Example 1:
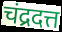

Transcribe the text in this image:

चंद्रदत्त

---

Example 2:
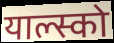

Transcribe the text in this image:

याल्स्को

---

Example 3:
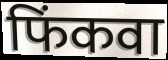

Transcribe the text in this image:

फिंकवा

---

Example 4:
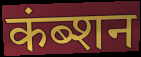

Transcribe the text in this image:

कंब्शन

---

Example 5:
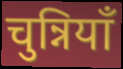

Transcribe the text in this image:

चुन्नियाँ